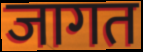
जागत